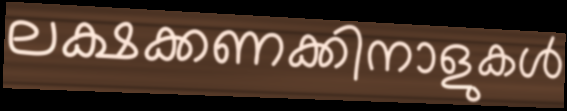
ലക്ഷക്കണക്കിനാളുകൾ